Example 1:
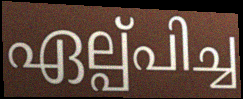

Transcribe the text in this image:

ഏല്പ്പിച്ച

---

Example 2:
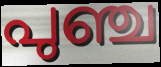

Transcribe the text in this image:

പുഞ്ച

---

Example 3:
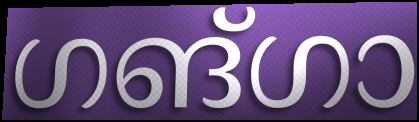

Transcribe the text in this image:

ഗങ്ഗാ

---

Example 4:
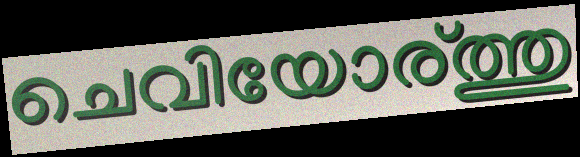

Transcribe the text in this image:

ചെവിയോര്ത്തു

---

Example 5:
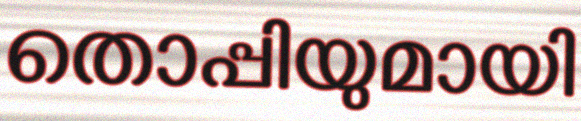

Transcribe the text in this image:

തൊപ്പിയുമായി